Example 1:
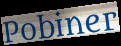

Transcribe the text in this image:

Pobiner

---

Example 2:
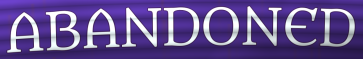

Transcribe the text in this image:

ABANDONED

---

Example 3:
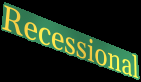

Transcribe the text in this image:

Recessional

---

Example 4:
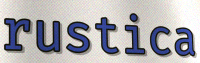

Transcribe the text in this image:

rustica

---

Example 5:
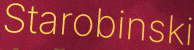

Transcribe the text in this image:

Starobinski